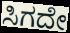
ಸಿಗದೇ